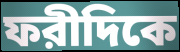
ফরীদিকে